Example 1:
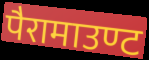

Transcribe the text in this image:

पैरामाउण्ट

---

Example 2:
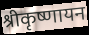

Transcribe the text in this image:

श्रीकृष्णायन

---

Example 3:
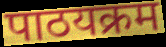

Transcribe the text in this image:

पाठयक्रम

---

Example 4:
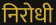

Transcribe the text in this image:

निरोधी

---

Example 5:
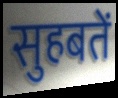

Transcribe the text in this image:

सुहबतें